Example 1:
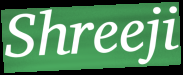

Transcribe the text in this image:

Shreeji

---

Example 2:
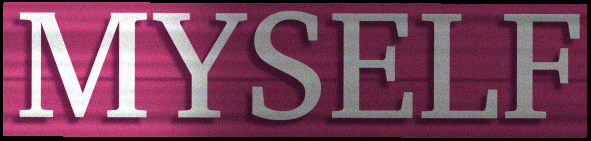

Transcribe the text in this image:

MYSELF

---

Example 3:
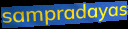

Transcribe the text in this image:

sampradayas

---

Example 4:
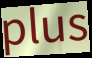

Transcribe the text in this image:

plus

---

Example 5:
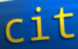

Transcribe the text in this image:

cit